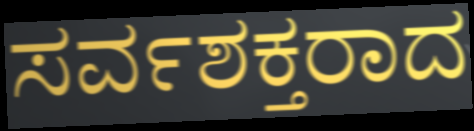
ಸರ್ವಶಕ್ತರಾದ